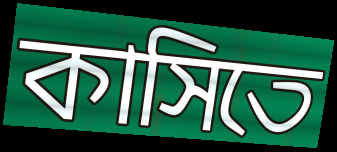
কাসিতে